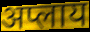
अप्लाय